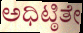
ಅಧಿಟ್ಠಿತೇ